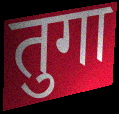
तुगा